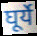
घूर्ये